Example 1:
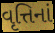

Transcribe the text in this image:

વૃત્તિનાં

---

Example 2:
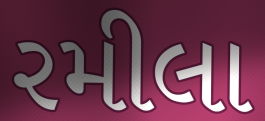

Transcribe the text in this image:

રમીલા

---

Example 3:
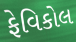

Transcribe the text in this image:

ફેવિકોલ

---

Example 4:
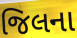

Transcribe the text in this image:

જિલના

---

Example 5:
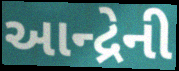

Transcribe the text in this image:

આન્દ્રેની